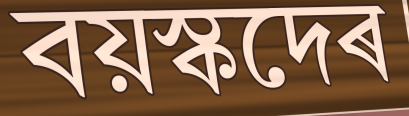
বয়স্কদেৰ